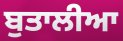
ਬੁਤਾਲੀਆ